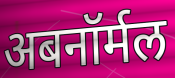
अबनॉर्मल